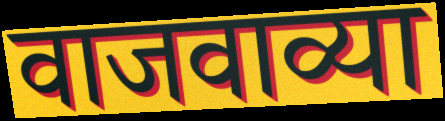
वाजवाव्या